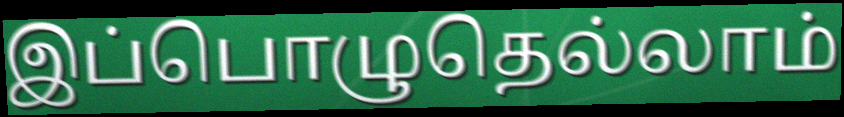
இப்பொழுதெல்லாம்